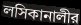
লসিকানালীর